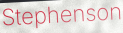
Stephenson